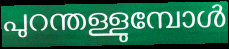
പുറന്തള്ളുമ്പോൾ